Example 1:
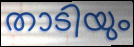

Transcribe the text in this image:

താടിയും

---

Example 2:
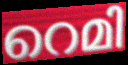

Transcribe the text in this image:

റെമി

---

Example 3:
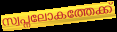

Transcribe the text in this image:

സ്വപ്നലോകത്തേക്ക്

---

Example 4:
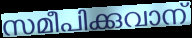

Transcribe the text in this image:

സമീപിക്കുവാന്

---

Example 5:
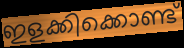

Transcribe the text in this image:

ഇളക്കിക്കൊണ്ട്